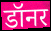
डॉनर